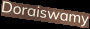
Doraiswamy